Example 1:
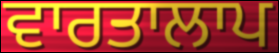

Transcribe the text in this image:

ਵਾਰਤਾਲਾਪ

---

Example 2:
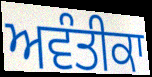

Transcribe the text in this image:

ਅਵੰਤੀਕਾ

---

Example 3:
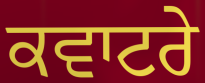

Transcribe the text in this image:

ਕਵਾਟਰੇ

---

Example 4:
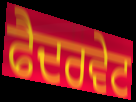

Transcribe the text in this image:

ਫੈਦਰਵੇਟ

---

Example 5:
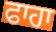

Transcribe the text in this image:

ਫਾਹਾ